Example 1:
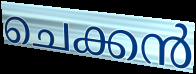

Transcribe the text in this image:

ചെക്കൻ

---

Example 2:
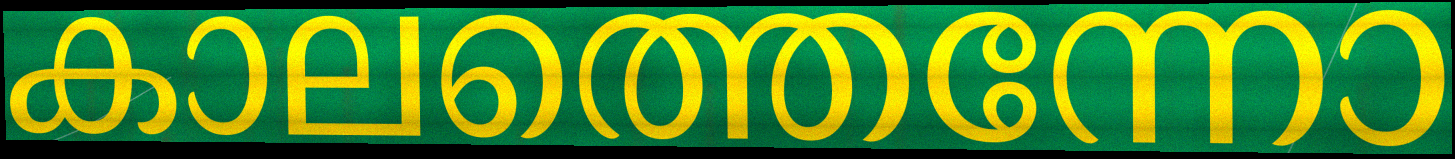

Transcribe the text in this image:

കാലത്തെന്നോ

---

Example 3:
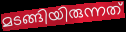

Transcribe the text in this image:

മടങ്ങിയിരുന്നത്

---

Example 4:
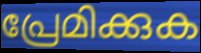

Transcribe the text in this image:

പ്രേമിക്കുക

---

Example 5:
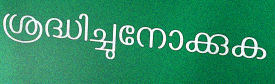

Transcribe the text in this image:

ശ്രദ്ധിച്ചുനോക്കുക